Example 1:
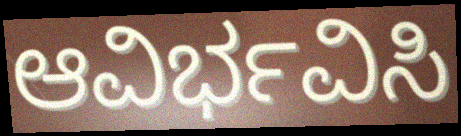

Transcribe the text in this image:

ಆವಿರ್ಭವಿಸಿ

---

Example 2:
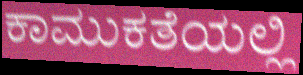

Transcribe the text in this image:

ಕಾಮುಕತೆಯಲ್ಲಿ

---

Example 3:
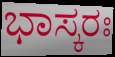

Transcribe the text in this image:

ಭಾಸ್ಕರಃ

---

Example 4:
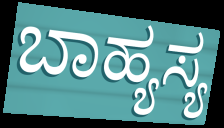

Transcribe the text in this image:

ಬಾಹ್ಯಸ್ಯ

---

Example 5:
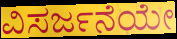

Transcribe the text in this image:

ವಿಸರ್ಜನೆಯೇ